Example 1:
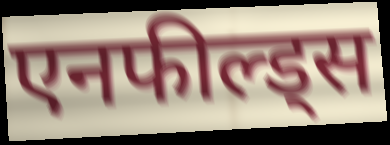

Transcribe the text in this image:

एनफील्ड्स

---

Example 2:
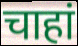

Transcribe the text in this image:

चाहां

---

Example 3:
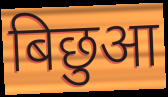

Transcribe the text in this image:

बिछुआ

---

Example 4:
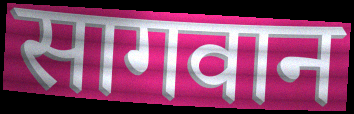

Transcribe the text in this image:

सागवान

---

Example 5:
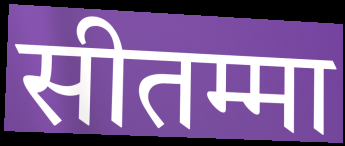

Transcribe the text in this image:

सीतम्मा